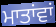
ਮਾਤਾਂਵਾਂ